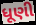
ધૂણી